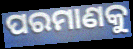
ପରମାଣକୁ